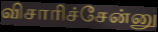
விசாரிச்சேன்னு